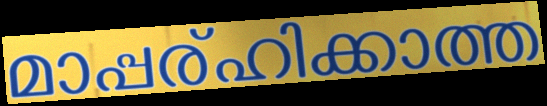
മാപ്പര്ഹിക്കാത്ത